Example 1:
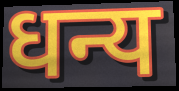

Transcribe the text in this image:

धन्य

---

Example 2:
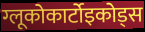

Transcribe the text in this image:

ग्लूकोकार्टोइकोड्स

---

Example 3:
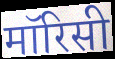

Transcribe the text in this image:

मॉरिसी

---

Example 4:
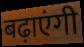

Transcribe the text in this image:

बढ़ाएंगी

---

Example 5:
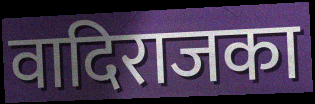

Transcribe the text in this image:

वादिराजका